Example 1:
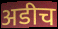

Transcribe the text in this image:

अडीच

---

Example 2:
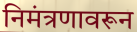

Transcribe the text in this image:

निमंत्रणावरून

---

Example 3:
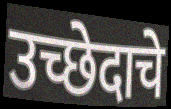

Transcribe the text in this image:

उच्छेदाचे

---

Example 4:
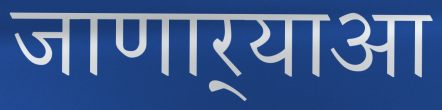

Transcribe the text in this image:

जाणार्याआ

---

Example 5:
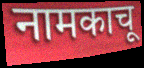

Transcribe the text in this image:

नामकाचू